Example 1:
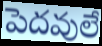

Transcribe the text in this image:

పెదవులే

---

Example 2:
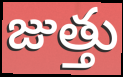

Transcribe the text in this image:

జుత్తు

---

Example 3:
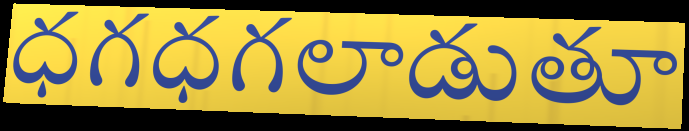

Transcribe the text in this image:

ధగధగలాడుతూ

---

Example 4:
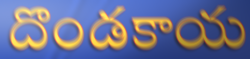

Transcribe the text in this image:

దొండకాయ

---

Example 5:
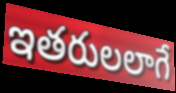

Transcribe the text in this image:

ఇతరులలాగే